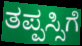
ತಪ್ಪಸ್ಸಿಗೆ